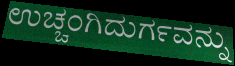
ಉಚ್ಚಂಗಿದುರ್ಗವನ್ನು